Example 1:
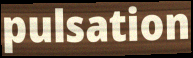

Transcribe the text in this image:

pulsation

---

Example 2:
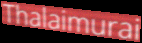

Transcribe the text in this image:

Thalaimurai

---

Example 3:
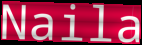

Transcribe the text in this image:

Naila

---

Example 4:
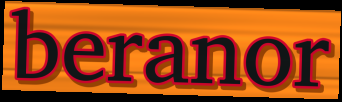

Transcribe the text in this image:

beranor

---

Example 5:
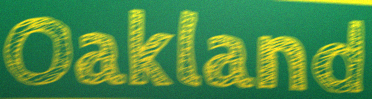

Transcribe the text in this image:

Oakland